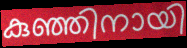
കുഞ്ഞിനായി